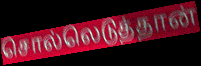
சொல்லெடுத்தான்